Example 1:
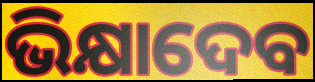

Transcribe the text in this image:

ଭିକ୍ଷାଦେବ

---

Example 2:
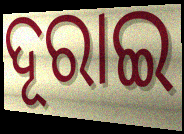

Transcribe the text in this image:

ଦୂରାଇ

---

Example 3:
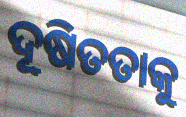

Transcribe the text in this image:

ଦୂଷିତତାକୁ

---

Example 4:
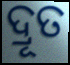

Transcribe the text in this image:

ଦ୍ରୂତ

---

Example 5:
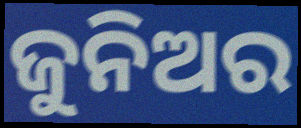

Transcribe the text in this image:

ଜୁନିଅର